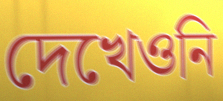
দেখেওনি